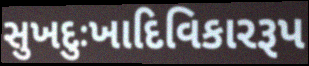
સુખદુઃખાદિવિકારરૂપ